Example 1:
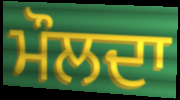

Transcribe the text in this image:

ਮੌਲਦਾ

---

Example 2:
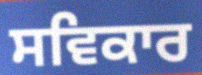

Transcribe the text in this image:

ਸਵਿਕਾਰ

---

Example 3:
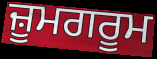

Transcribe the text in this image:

ਜ਼ੂਮਗਰੂਮ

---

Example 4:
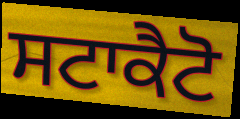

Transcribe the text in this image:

ਸਟਾਕੈਟੋ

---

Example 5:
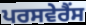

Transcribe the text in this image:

ਪਰਸਵੇਰੈਂਸ